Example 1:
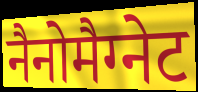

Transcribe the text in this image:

नैनोमैग्नेट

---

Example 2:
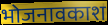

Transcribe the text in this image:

भोजनावकाश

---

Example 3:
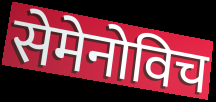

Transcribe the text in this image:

सेमेनोविच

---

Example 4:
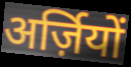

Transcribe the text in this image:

अर्ज़ियों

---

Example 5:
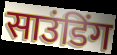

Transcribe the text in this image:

साउंडिंग